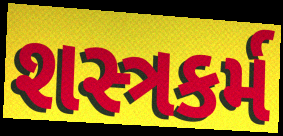
શસ્ત્રકર્મ